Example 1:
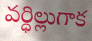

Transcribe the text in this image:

వర్ధిల్లుగాక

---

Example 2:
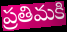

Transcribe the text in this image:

ప్రతిమకి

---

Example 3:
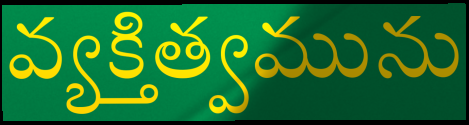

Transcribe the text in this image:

వ్యక్తిత్వమును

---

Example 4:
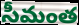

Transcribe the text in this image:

సీమంత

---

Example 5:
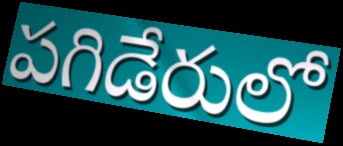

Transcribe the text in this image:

పగిడేరులో